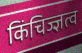
किंचिज्ज्ञत्व